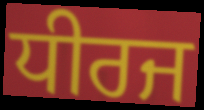
ਧੀਰਜ